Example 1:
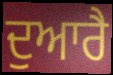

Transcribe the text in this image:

ਦੁਆਰੈ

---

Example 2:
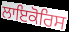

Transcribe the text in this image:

ਲਾਇਕੋਰਿਸ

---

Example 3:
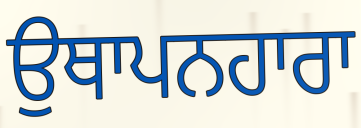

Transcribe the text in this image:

ਉਥਾਪਨਹਾਰਾ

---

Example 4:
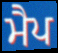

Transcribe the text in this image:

ਮੈਪ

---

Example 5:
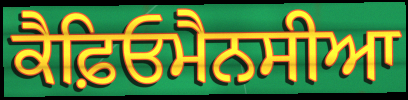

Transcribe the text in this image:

ਕੈਫ਼ਿਓਮੈਨਸੀਆ